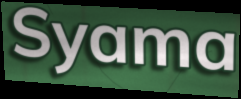
Syama